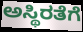
ಅಸ್ಥಿರತೆಗೆ